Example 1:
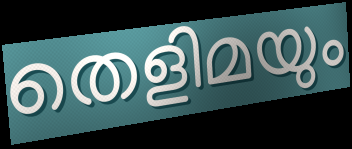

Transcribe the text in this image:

തെളിമയും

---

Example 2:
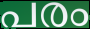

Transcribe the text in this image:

പരം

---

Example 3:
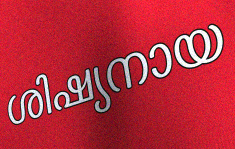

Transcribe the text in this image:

ശിഷ്യനായ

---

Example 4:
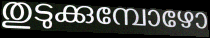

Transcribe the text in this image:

തുടുക്കുമ്പോഴോ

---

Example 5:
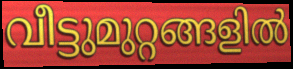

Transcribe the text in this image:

വീട്ടുമുറ്റങ്ങളിൽ